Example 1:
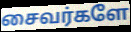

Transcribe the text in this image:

சைவர்களே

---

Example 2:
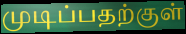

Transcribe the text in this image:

முடிப்பதற்குள்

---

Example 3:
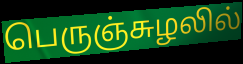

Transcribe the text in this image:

பெருஞ்சுழலில்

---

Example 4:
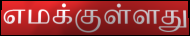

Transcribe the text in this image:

எமக்குள்ளது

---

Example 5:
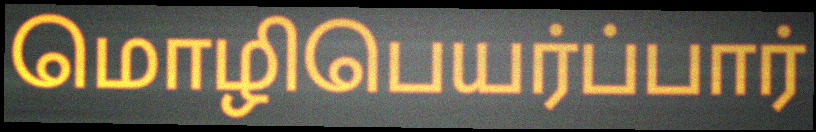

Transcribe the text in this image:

மொழிபெயர்ப்பார்